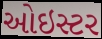
ઓઇસ્ટર